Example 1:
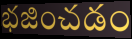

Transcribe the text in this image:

భజించడం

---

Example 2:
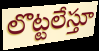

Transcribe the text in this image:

లొట్టలేస్తూ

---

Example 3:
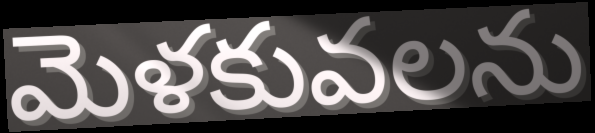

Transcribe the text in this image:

మెళకువలను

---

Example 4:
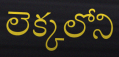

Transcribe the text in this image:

లెక్కలోని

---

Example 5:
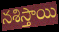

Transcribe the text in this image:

నశిస్తాయి